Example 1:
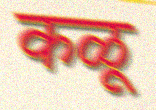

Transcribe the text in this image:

कळू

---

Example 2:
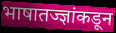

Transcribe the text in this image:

भाषातज्ज्ञांकडून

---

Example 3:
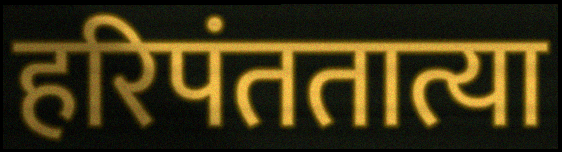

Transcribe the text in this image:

हरिपंततात्या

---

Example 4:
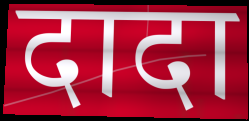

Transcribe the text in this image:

दादा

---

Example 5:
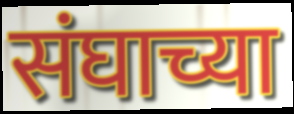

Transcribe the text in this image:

संघाच्या